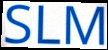
SLM